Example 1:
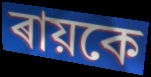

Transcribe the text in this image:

ৰায়কে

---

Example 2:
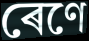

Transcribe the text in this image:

ৰেণে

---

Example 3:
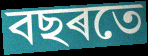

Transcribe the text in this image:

বছৰতে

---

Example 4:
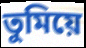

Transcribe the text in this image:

তুমিয়ে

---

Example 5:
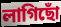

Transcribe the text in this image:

লাগিছোঁ